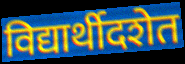
विद्यार्थीदशेत